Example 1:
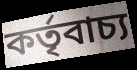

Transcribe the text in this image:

কর্তৃবাচ্য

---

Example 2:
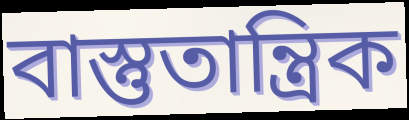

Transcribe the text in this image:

বাস্তুতান্ত্রিক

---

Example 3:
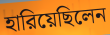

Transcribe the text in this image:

হারিয়েছিলেন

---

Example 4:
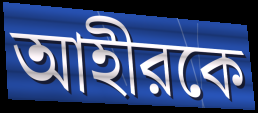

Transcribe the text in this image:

আহীরকে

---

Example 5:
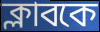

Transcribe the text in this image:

ক্লাবকে